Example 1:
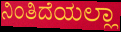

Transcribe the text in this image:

ನಿಂತಿದೆಯಲ್ಲಾ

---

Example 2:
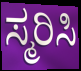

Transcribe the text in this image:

ಸ್ಮರಿಸಿ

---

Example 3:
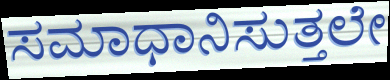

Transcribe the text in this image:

ಸಮಾಧಾನಿಸುತ್ತಲೇ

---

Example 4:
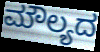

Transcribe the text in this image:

ಮೌಲ್ಯದ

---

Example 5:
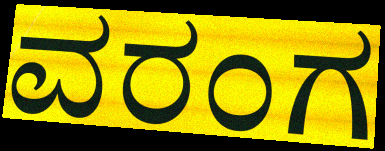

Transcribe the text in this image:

ವರಂಗ